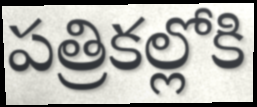
పత్రికల్లోకి